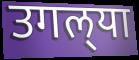
उगल्या